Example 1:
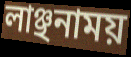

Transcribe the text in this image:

লাঞ্ছনাময়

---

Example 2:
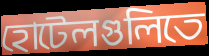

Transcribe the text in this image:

হোটেলগুলিতে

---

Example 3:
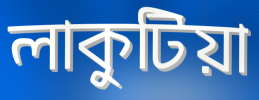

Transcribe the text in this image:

লাকুটিয়া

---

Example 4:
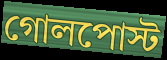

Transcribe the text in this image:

গোলপোস্ট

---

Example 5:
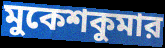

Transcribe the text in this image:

মুকেশকুমার